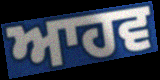
ਆਹਵ